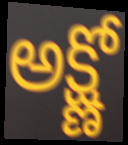
అక్ష్ణో